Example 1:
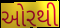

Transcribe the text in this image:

ઓરથી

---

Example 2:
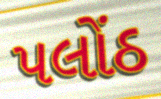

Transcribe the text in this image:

પલોંઠ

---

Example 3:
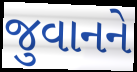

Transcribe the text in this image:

જુવાનને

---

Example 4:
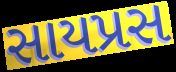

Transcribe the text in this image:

સાયપ્રસ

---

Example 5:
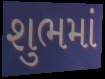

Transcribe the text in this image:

શુભમાં